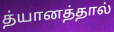
த்யானத்தால்